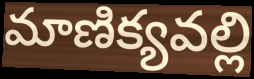
మాణిక్యవల్లి